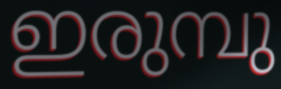
ഇരുമ്പു